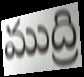
ముద్రి